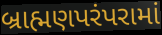
બ્રાહ્મણપરંપરામાં